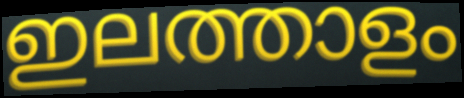
ഇലത്താളം